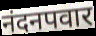
नंदनपवार